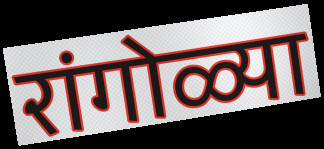
रांगोळ्या